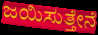
ಜಯಿಸುತ್ತೇನೆ